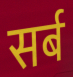
सर्ब